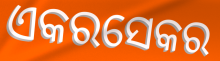
ଏକରସେକର